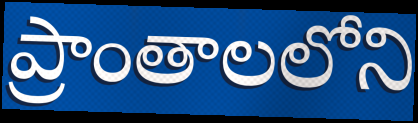
ప్రాంతాలలోని